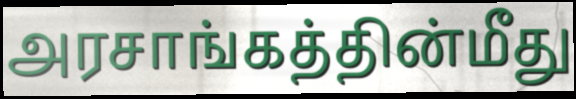
அரசாங்கத்தின்மீது